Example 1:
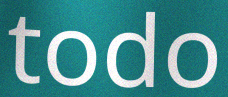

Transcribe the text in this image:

todo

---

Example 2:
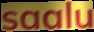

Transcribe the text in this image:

saalu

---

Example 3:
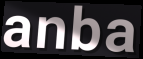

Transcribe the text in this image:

anba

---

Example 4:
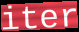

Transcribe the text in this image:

iter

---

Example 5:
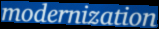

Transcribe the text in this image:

modernization